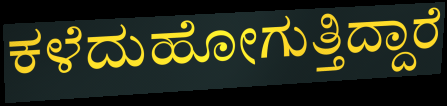
ಕಳೆದುಹೋಗುತ್ತಿದ್ದಾರೆ